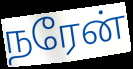
நரேன்